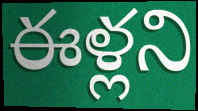
ఈళ్లని